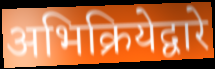
अभिक्रियेद्वारे